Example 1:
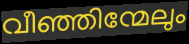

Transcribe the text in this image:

വീഞ്ഞിന്മേലും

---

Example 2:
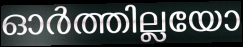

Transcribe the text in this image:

ഓർത്തില്ലയോ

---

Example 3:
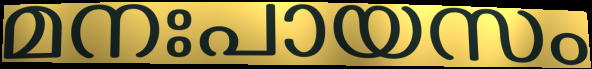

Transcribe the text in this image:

മനഃപായസം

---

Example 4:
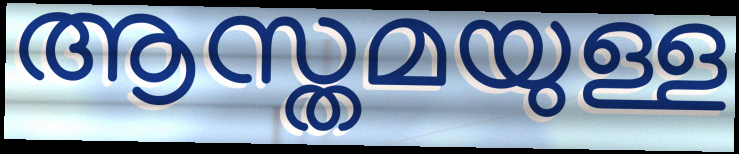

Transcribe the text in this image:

ആസ്തമയുള്ള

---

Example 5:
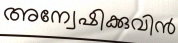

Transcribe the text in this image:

അന്വേഷിക്കുവിൻ